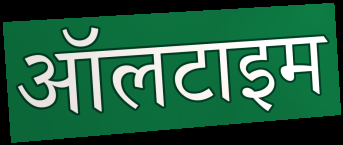
ऑलटाइम